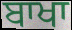
ਬਾਖਾ